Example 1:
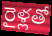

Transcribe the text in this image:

రైళ్లతో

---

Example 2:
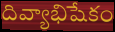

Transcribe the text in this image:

దివ్యాభిషేకం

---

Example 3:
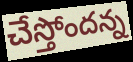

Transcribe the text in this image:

చేస్తోందన్న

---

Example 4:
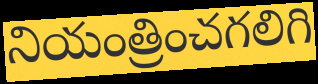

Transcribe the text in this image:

నియంత్రించగలిగి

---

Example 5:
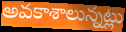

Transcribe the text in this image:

అవకాశాలున్నట్లు